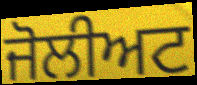
ਜੋਲੀਅਟ